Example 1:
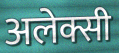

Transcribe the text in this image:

अलेक्सी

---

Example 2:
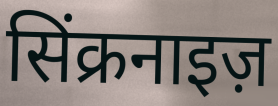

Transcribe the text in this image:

सिंक्रनाइज़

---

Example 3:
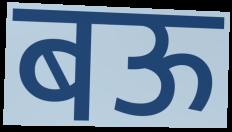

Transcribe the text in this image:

बऊ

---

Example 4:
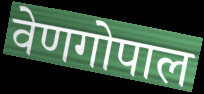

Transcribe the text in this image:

वेणगोपाल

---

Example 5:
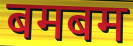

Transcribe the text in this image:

बमबम